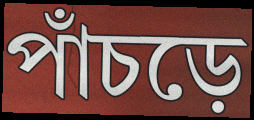
পাঁচড়ে